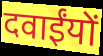
दवाईंयों